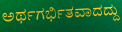
ಅರ್ಥಗರ್ಭಿತವಾದದ್ದು